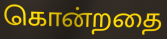
கொன்றதை